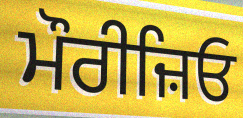
ਮੌਰੀਜ਼ਿਓ